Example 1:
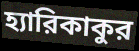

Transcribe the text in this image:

হ্যারিকাকুর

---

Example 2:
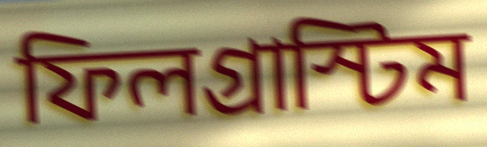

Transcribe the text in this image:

ফিলগ্রাস্টিম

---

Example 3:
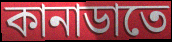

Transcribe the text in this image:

কানাডাতে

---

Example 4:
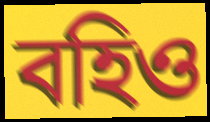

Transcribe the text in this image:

বহিও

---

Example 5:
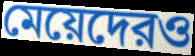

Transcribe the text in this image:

মেয়েদেরও